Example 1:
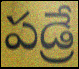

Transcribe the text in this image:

పడ్రే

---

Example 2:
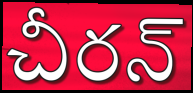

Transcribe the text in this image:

చీరన్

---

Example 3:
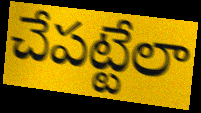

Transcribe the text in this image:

చేపట్టేలా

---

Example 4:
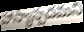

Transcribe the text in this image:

హాస్యాస్పదమని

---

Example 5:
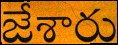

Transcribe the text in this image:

జేశారు